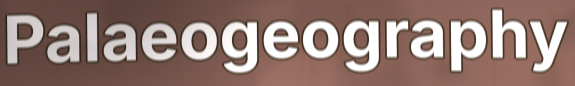
Palaeogeography